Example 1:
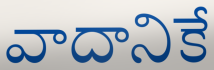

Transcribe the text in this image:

వాదానికే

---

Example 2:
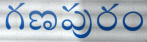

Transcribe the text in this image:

గణపురం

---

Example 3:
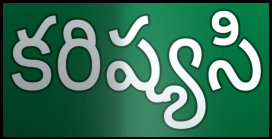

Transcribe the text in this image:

కరిష్యసి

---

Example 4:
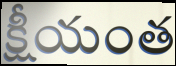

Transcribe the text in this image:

క్షీయంత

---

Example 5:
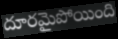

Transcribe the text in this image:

దూరమైపోయింది